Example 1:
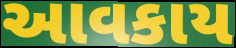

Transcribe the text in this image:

આવકાય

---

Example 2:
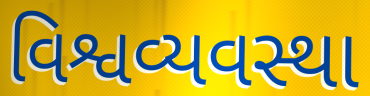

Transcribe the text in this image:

વિશ્વવ્યવસ્થા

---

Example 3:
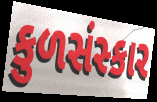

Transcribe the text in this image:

કુળસંસ્કાર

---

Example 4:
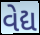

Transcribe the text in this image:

વેદ્ય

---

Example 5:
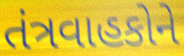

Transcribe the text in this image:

તંત્રવાહકોને